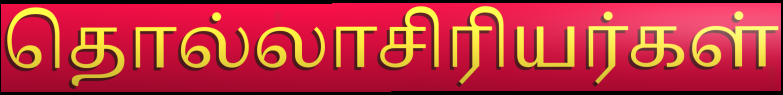
தொல்லாசிரியர்கள்